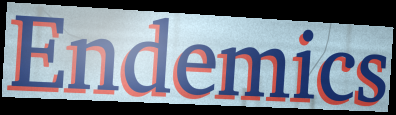
Endemics